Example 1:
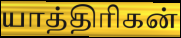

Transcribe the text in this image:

யாத்திரிகன்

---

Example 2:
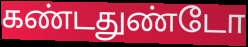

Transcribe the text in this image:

கண்டதுண்டோ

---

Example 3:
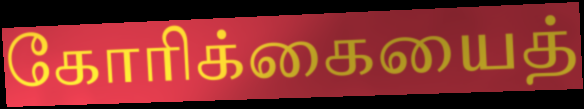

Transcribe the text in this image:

கோரிக்கையைத்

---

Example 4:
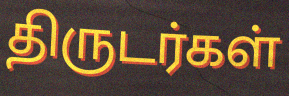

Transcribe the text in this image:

திருடர்கள்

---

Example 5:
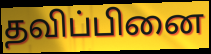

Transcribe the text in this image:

தவிப்பினை